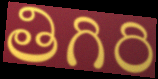
తిగిరి